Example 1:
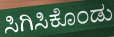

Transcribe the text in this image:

ಸಿಗಿಸಿಕೊಂಡು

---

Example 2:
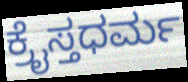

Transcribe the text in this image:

ಕ್ರೈಸ್ತಧರ್ಮ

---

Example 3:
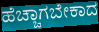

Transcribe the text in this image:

ಹೆಚ್ಚಾಗಬೇಕಾದ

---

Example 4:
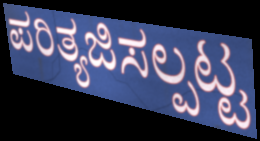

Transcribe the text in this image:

ಪರಿತ್ಯಜಿಸಲ್ಪಟ್ಟ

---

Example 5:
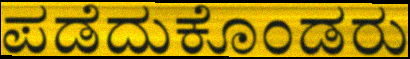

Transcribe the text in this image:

ಪಡೆದುಕೊಂಡರು